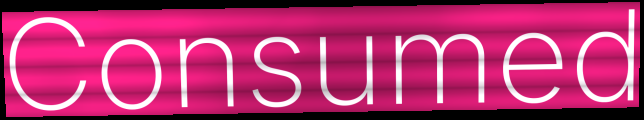
Consumed